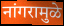
नांगरामुळे